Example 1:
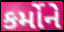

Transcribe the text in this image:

કર્મોને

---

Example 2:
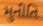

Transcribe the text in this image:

મુનીતિ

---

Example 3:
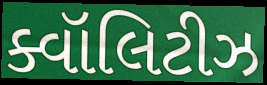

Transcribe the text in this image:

ક્વૉલિટીઝ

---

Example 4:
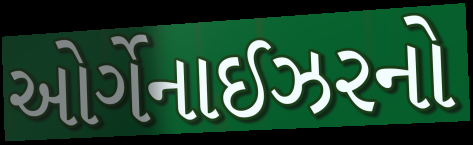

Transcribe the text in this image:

ઓર્ગેનાઈઝરનો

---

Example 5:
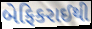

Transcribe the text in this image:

બેફિકરાઈથી